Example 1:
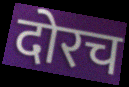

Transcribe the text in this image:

दोरच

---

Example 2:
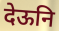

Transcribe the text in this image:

देऊनि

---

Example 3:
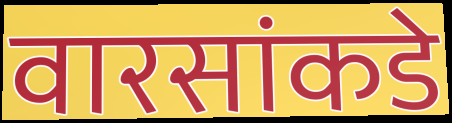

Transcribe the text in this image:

वारसांकडे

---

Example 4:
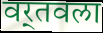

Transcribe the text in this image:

वर्तवला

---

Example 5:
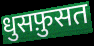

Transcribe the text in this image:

धुसफ़ुसत